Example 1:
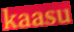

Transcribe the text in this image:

kaasu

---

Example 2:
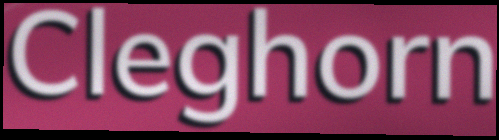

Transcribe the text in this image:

Cleghorn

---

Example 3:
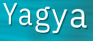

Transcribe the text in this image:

Yagya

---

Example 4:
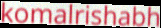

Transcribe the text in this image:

komalrishabh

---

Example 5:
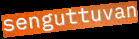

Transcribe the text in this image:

senguttuvan